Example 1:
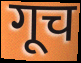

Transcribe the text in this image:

गूच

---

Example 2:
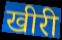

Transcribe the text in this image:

खीरी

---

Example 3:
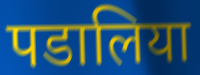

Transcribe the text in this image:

पडालिया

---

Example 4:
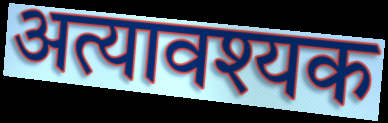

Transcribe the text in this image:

अत्यावश्यक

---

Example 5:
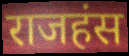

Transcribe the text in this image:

राजहंस